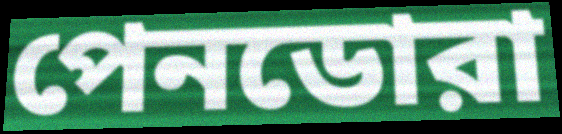
পেনডোরা